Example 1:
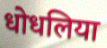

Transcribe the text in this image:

धोधलिया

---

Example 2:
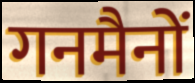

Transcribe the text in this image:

गनमैनों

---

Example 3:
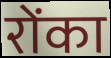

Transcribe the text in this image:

रोंका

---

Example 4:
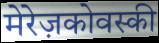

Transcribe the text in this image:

मेरेज़कोवस्की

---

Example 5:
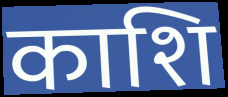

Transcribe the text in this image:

काशि